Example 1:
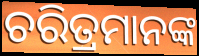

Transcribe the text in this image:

ଚରିତ୍ରମାନଙ୍କ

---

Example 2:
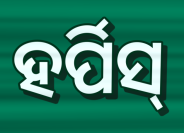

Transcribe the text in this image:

ହର୍ପିସ୍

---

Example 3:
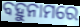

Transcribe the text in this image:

ବହୁନାମରେ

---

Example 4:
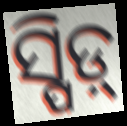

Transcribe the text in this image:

ସ୍ପିଡ଼୍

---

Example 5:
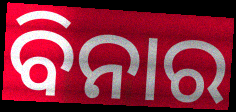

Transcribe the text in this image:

ବିନାର